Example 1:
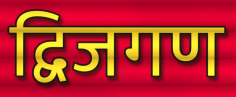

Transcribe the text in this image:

द्विजगण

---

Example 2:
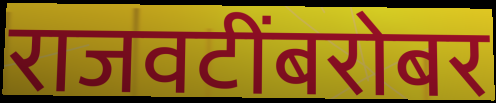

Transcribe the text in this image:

राजवटींबरोबर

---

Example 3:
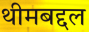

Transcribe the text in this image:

थीमबद्दल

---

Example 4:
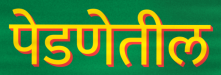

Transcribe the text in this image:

पेडणेतील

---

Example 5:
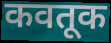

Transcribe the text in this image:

कवतूक